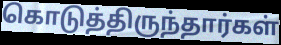
கொடுத்திருந்தார்கள்